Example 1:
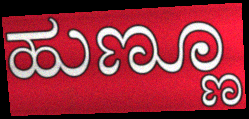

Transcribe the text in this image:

ಹುಣ್ಣೂ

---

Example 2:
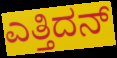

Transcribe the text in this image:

ಎತ್ತಿದನ್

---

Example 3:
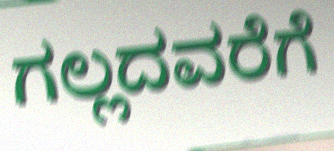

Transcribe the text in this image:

ಗಲ್ಲದವರೆಗೆ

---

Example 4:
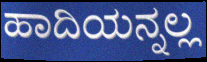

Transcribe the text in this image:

ಹಾದಿಯನ್ನಲ್ಲ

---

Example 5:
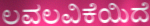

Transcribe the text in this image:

ಲವಲವಿಕೆಯಿದೆ